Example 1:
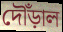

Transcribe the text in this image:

দৌঁড়াল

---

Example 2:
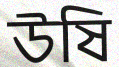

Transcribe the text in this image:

উষি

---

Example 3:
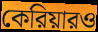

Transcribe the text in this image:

কেরিয়ারও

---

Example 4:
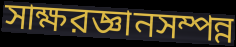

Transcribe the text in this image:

সাক্ষরজ্ঞানসম্পন্ন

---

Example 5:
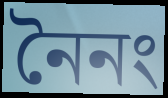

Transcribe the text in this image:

নৈনং